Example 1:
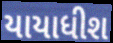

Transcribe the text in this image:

યાયાધીશ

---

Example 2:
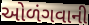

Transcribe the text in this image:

ઓળંગવાની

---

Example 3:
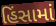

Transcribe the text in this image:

હિંસામાં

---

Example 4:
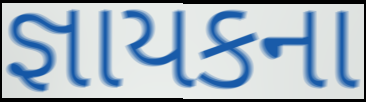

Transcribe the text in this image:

જ્ઞાયકના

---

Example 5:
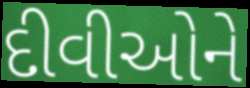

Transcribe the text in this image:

દીવીઓને